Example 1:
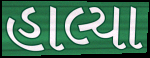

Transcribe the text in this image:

હાલ્યા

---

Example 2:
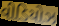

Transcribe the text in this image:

વીડિયોઝ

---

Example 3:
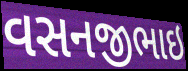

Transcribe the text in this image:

વસનજીભાઇ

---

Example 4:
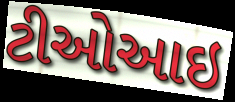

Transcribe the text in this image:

ટીઓઆઇ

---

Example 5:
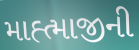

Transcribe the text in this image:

માહ્ત્માજીની